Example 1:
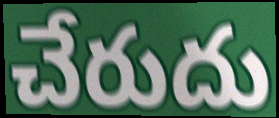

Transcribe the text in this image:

చేరుదు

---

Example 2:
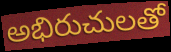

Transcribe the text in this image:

అభిరుచులతో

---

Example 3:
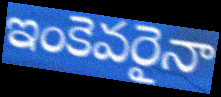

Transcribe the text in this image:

ఇంకెవరైనా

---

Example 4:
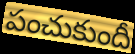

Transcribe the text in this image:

పంచుకుందీ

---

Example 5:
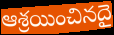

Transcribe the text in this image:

ఆశ్రయించినదై